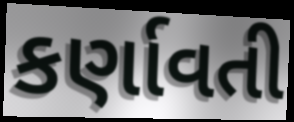
કર્ણાવતી